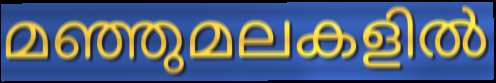
മഞ്ഞുമലകളിൽ